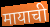
मायाची